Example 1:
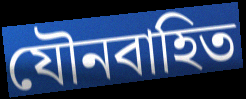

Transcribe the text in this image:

যৌনবাহিত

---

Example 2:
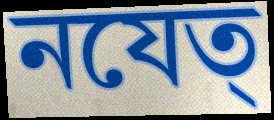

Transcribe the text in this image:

নযেত্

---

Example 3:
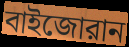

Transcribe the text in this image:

বাইজোরান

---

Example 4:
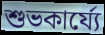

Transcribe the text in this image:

শুভকার্য্যে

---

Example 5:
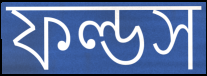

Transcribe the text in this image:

ফল্ডস